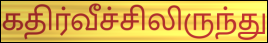
கதிர்வீச்சிலிருந்து